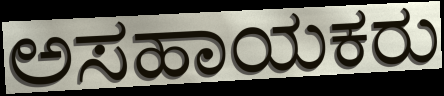
ಅಸಹಾಯಕರು